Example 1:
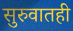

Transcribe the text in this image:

सुरुवातही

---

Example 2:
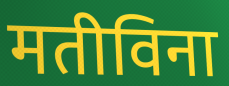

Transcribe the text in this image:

मतीविना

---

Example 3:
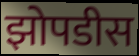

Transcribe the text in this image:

झोपडीस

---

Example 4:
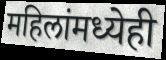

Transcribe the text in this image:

महिलांमध्येही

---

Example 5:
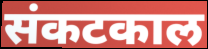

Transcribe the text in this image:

संकटकाल